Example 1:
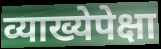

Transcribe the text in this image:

व्याख्येपेक्षा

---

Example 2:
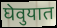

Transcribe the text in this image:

घेवुयात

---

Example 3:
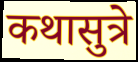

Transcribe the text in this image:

कथासुत्रे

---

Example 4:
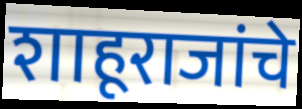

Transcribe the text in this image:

शाहूराजांचे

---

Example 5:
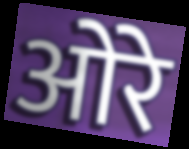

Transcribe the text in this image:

ओरे